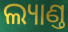
ଲ୍ୟାଣ୍ତ